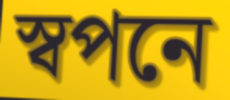
স্বপনে